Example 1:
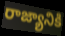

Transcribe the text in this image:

రాజ్యానికి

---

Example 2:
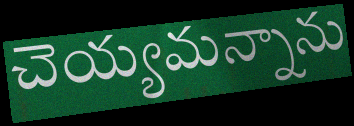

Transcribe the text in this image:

చెయ్యమన్నాను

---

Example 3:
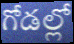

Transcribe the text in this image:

గోడల్లో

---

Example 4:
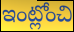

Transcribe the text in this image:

ఇంట్లోంచి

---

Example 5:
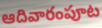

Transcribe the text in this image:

ఆదివారంపూట